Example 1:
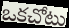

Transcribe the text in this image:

ఒకచోటు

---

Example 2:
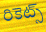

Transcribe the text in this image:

రికెట్స్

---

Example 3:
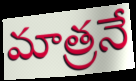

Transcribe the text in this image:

మాత్రనే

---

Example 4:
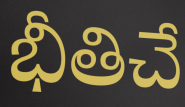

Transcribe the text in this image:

భీతిచే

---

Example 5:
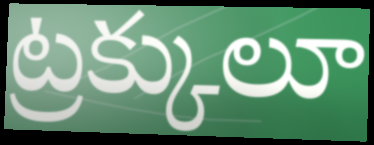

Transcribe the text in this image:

ట్రక్కులూ